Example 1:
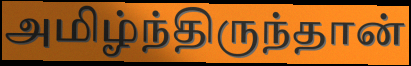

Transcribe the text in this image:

அமிழ்ந்திருந்தான்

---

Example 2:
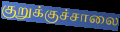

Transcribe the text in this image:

குறுக்குச்சாலை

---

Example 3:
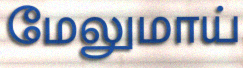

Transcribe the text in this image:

மேலுமாய்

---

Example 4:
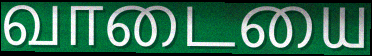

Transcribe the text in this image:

வாடையை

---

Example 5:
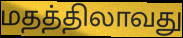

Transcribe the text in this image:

மதத்திலாவது